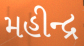
મહીન્દ્ર